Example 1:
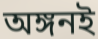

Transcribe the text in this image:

অঙ্গনই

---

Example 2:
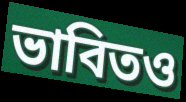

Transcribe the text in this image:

ভাবিতও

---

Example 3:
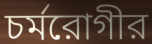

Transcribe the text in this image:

চর্মরোগীর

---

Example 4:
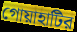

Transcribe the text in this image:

গোয়াহাটির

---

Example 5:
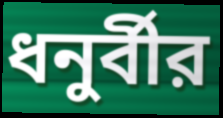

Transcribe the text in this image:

ধনুর্বীর